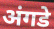
अंगडे